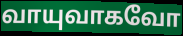
வாயுவாகவோ